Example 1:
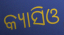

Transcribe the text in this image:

କ୍ୟାସିଓ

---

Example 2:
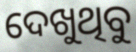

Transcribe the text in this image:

ଦେଖୁଥିବୁ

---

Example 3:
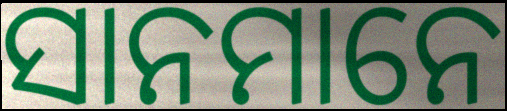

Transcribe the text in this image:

ସାନମାନେ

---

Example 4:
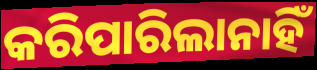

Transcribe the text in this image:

କରିପାରିଲାନାହିଁ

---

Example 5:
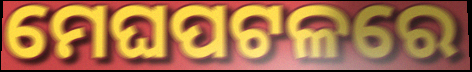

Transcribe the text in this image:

ମେଘପଟଳରେ